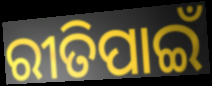
ରୀତିପାଇଁ